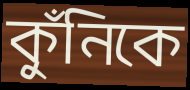
কুঁনিকে